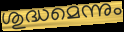
ശുദ്ധമെന്നും